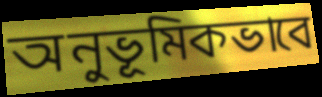
অনুভূমিকভাবে